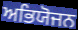
ਅਭਿਯੋਜਨ